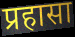
प्रहासा